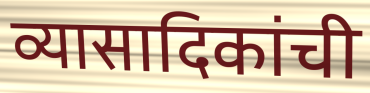
व्यासादिकांची